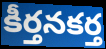
కీర్తనకర్త